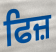
ਫਿਜ਼